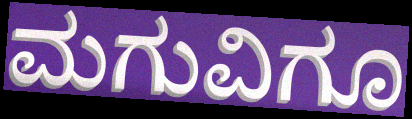
ಮಗುವಿಗೂ